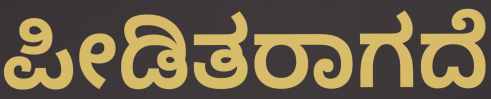
ಪೀಡಿತರಾಗದೆ